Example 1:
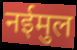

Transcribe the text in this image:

नईमुल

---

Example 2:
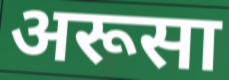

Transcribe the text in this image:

अरूसा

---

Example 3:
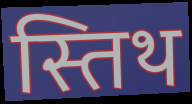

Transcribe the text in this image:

स्तिथ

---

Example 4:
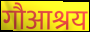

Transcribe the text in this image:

गौआश्रय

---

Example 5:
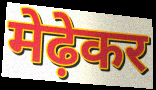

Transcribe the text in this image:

मेढ़ेकर